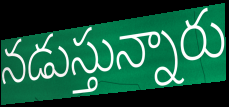
నడుస్తున్నారు